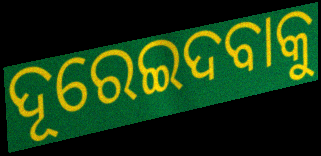
ଦୂରେଇଦବାକୁ